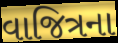
વાજિત્રના